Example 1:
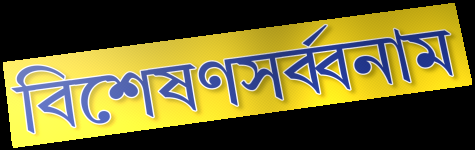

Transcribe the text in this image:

বিশেষণসৰ্ব্বনাম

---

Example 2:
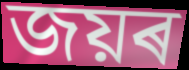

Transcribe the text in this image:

জয়ৰ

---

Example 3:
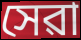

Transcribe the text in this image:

সেৱা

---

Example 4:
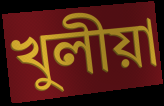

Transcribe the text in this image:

খুলীয়া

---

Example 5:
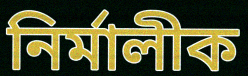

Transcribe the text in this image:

নিৰ্মালীক